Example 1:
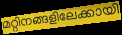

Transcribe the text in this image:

മറ്റിനങ്ങളിലേക്കായി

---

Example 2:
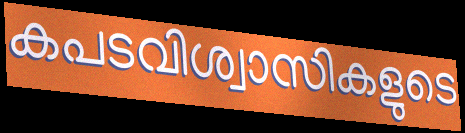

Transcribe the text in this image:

കപടവിശ്വാസികളുടെ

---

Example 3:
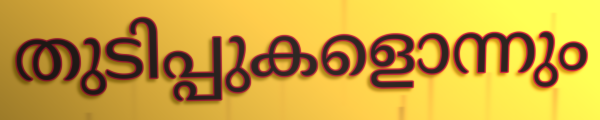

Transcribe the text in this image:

തുടിപ്പുകളൊന്നും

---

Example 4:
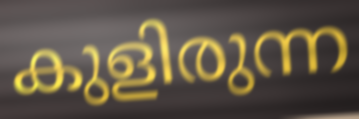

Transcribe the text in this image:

കുളിരുന്ന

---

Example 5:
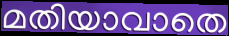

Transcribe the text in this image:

മതിയാവാതെ